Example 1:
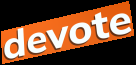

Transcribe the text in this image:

devote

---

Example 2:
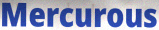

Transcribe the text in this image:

Mercurous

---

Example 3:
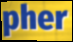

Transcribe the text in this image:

pher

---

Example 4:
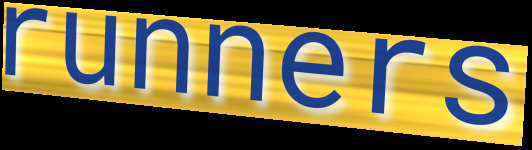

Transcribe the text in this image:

runners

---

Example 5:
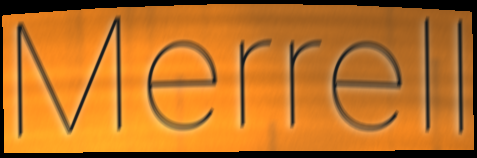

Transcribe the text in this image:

Merrell